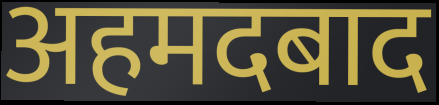
अहमदबाद